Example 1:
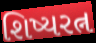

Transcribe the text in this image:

શિષ્યરત્ન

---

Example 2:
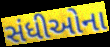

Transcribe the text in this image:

સંધીઓના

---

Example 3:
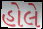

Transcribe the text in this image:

હોલે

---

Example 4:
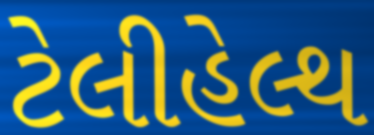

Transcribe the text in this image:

ટેલીહેલ્થ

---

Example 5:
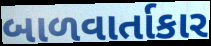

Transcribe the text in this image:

બાળવાર્તાકાર